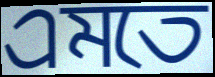
এমতে